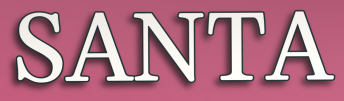
SANTA